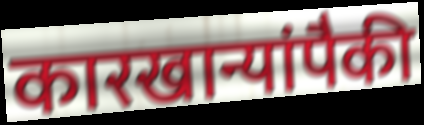
कारखान्यांपैकी